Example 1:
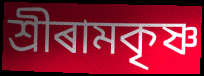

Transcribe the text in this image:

শ্ৰীৰামকৃষ্ণ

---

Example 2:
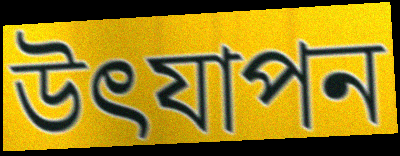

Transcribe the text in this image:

উৎযাপন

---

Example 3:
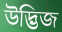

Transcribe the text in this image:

উদ্ভিজ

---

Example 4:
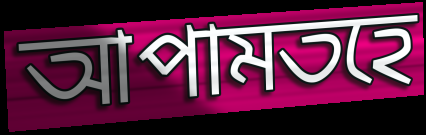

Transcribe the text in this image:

আপামতহে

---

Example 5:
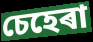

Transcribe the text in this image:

চেহেৰা